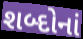
શબ્દોનાં